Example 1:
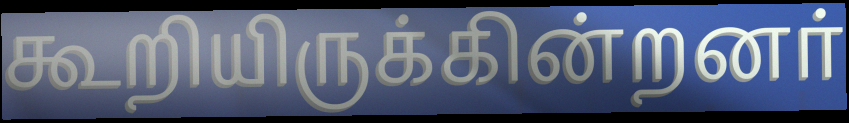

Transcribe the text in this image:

கூறியிருக்கின்றனர்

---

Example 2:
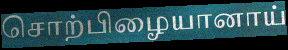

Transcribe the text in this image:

சொற்பிழையானாய்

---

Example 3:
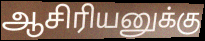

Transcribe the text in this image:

ஆசிரியனுக்கு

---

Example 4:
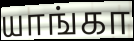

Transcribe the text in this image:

யாங்கா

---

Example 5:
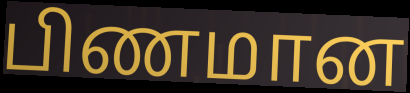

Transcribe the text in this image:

பிணமான